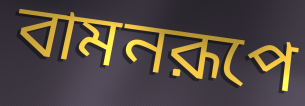
বামনরূপে